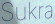
Sukra